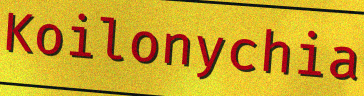
Koilonychia